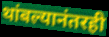
थांबल्यानंतरही